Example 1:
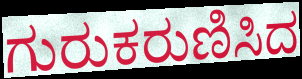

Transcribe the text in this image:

ಗುರುಕರುಣಿಸಿದ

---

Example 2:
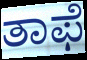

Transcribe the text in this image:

ತಾಫೆ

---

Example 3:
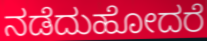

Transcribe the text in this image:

ನಡೆದುಹೋದರೆ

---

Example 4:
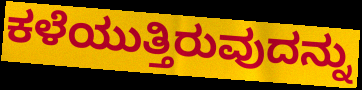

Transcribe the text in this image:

ಕಳೆಯುತ್ತಿರುವುದನ್ನು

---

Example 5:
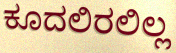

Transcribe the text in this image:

ಕೂದಲಿರಲಿಲ್ಲ